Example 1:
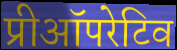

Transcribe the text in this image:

प्रीऑपरेटिव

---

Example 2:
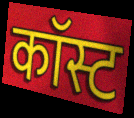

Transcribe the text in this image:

कॉस्ट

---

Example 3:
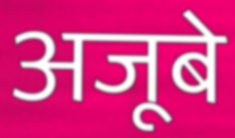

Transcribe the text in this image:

अजूबे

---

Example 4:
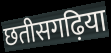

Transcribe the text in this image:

छतीसगढ़िया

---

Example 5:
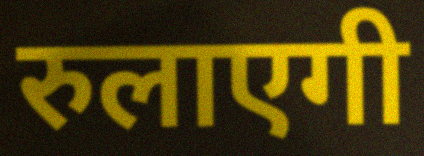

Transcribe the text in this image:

रुलाएगी